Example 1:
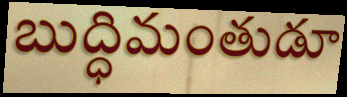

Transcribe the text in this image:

బుద్ధిమంతుడూ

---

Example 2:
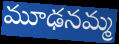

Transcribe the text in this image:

మూఢనమ్మ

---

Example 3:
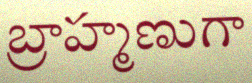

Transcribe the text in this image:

బ్రాహ్మణుగా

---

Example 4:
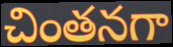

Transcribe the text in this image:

చింతనగా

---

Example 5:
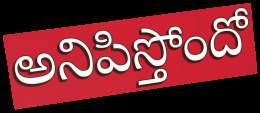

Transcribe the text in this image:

అనిపిస్తోందో